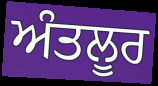
ਅੰਤਲੂਰ